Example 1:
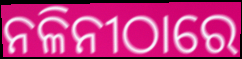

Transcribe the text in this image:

ନଳିନୀଠାରେ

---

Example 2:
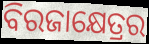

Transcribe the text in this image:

ବିରଜାକ୍ଷେତ୍ରର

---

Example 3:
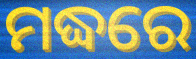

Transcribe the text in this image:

ମଦ୍ଧରେ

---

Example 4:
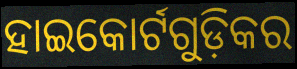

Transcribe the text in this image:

ହାଇକୋର୍ଟଗୁଡ଼ିକର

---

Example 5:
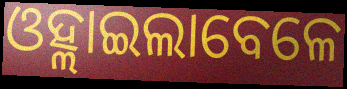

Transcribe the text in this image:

ଓହ୍ଲାଇଲାବେଳେ